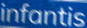
infantis